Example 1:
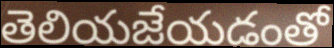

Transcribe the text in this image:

తెలియజేయడంతో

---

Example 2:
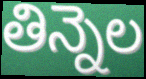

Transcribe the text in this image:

తిన్నెల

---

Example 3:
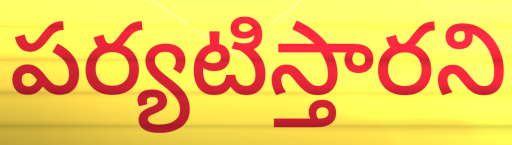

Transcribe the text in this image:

పర్యటిస్తారని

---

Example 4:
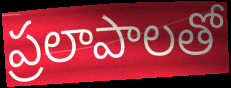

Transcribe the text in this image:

ప్రలాపాలతో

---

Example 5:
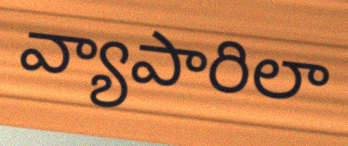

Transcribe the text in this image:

వ్యాపారిలా